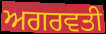
ਅਗਰਵਤੀ